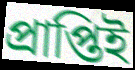
প্রাপ্তিই